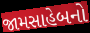
જામસાહેબનો